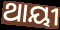
ଥାୟୀ